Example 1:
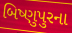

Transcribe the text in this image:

બિષ્ણુપુરના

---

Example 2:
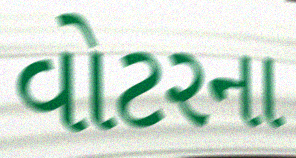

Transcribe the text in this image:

વોટરના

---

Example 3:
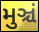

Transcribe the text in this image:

મુઞ્ચં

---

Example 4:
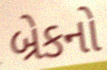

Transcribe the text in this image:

બ્રેકનો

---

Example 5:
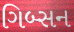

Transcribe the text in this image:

ગિબ્સન